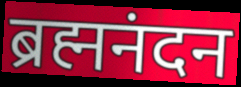
ब्रह्मनंदन